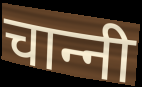
चान्नी